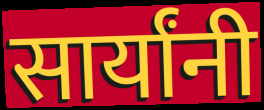
सार्यांनी